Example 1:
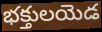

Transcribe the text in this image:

భక్తులయెడ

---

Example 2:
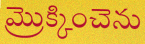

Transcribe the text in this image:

మ్రొక్కించెను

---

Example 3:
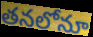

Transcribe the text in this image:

తనలోనూ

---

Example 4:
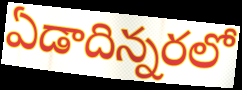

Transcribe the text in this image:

ఏడాదిన్నరలో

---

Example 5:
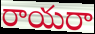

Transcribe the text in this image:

రాయరా